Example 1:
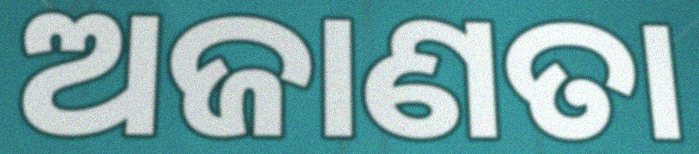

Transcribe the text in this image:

ଅଜାଣତା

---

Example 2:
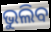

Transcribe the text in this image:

ଭୁଲିବ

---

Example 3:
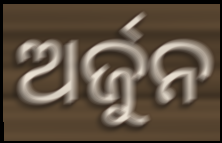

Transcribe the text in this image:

ଅର୍ଜୁନ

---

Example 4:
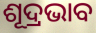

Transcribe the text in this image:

ଶୂଦ୍ରଭାବ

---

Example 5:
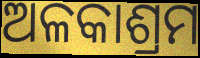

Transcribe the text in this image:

ଅଳକାଶ୍ରମ